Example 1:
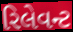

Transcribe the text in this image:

રિલેવન્ટ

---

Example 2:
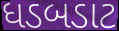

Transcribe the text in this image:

ધડબડાટ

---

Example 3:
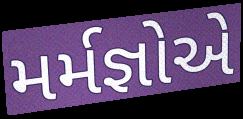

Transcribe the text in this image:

મર્મજ્ઞોએ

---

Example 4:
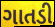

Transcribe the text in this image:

ગાતડી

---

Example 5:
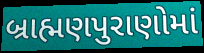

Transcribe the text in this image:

બ્રાહ્મણપુરાણોમાં